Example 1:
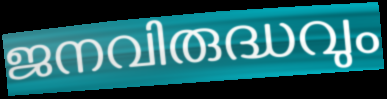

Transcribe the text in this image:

ജനവിരുദ്ധവും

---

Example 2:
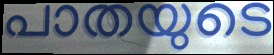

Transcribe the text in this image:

പാതയുടെ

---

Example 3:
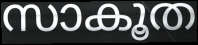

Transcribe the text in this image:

സാകൂത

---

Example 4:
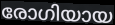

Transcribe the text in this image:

രോഗിയായ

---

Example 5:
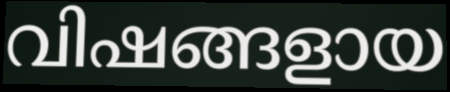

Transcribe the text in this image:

വിഷങ്ങളായ